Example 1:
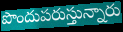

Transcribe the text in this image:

పొందుపరుస్తున్నారు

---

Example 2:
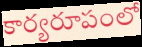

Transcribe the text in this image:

కార్యరూపంలో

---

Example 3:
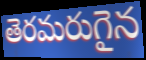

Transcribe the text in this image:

తెరమరుగైన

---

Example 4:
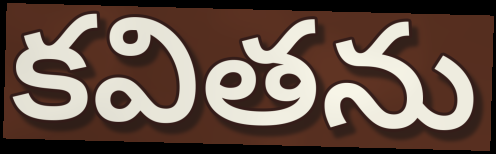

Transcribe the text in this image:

కవితను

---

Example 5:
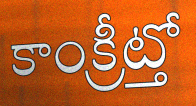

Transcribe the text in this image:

కాంక్రీట్తో